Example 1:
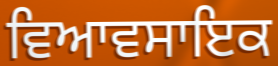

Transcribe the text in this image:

ਵਿਆਵਸਾਇਕ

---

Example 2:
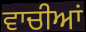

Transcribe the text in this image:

ਵਾਚੀਆਂ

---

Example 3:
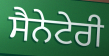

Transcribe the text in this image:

ਸੈਨੇਟੇਰੀ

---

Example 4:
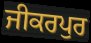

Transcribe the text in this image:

ਜੀਕਰਪੁਰ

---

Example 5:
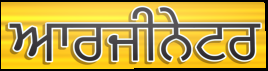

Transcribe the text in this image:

ਆਰਜੀਨੇਟਰ